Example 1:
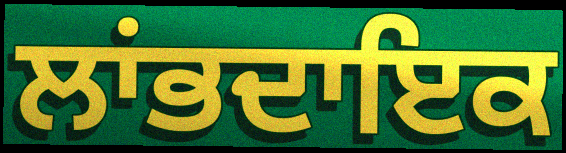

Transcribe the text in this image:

ਲਾਂਭਦਾਇਕ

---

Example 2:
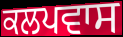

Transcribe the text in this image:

ਕਲਪਵਾਸ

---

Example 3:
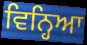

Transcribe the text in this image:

ਵਿਨ੍ਹਿਆ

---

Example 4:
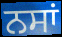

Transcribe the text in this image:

ਨਸਾਂ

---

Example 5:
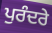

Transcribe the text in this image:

ਪੁਰੰਦਰੇ